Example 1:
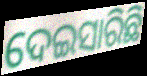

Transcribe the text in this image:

ଦେଇସାରିଛି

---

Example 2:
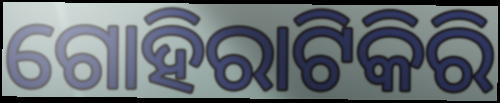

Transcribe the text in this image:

ଗୋହିରାଟିକିରି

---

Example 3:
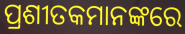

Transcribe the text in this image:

ପ୍ରଶୀତକମାନଙ୍କରେ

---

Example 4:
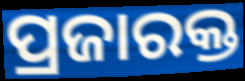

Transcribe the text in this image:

ପ୍ରଜାରକ୍ତ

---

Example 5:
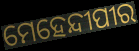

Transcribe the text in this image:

ମେହେନ୍ଦୀପୀର